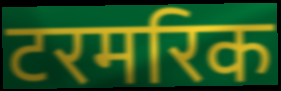
टरमरिक